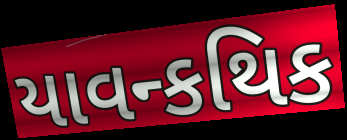
યાવન્કથિક